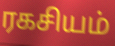
ரகசியம்